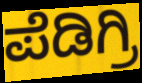
ಪೆಡಿಗ್ರಿ